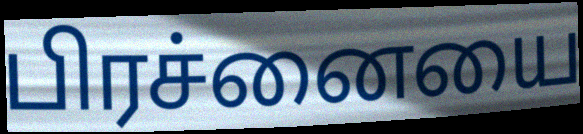
பிரச்னையை